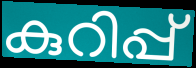
കുറിപ്പ്